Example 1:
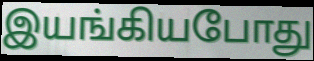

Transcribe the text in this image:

இயங்கியபோது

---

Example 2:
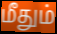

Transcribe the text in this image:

மீதும்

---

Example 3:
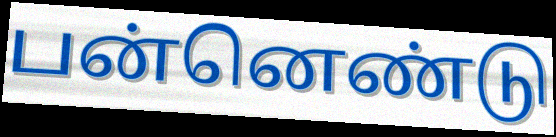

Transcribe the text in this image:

பன்னெண்டு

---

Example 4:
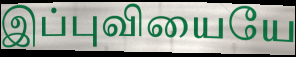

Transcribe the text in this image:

இப்புவியையே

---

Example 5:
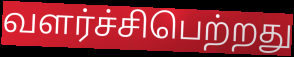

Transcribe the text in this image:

வளர்ச்சிபெற்றது